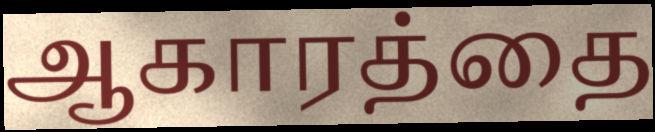
ஆகாரத்தை